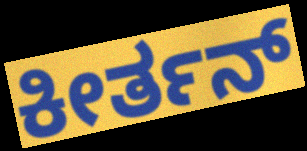
ಕೀರ್ತನ್